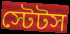
স্টেটস